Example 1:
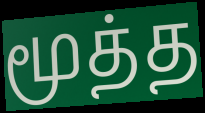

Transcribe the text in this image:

மூத்த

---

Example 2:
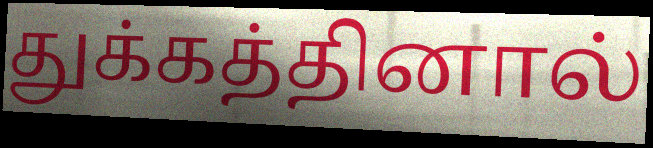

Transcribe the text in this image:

துக்கத்தினால்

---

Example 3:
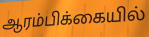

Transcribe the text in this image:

ஆரம்பிக்கையில்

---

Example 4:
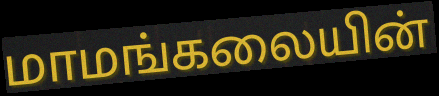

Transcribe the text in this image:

மாமங்கலையின்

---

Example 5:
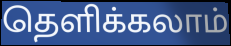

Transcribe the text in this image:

தெளிக்கலாம்